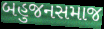
બહુજનસમાજ